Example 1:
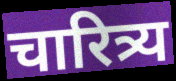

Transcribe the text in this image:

चारित्र्य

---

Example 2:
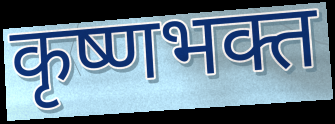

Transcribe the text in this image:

कृष्णभक्त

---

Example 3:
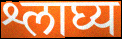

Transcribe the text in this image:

श्लाघ्य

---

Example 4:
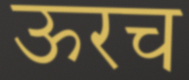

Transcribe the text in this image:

ऊरच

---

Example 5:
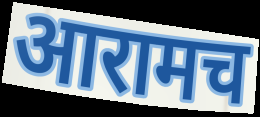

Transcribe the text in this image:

आरामच